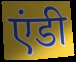
एंडी